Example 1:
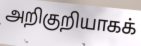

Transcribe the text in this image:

அறிகுறியாகக்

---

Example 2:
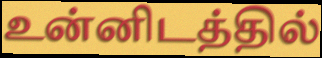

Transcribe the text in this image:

உன்னிடத்தில்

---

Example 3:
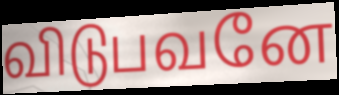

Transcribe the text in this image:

விடுபவனே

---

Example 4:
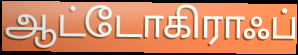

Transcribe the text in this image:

ஆட்டோகிராஃப்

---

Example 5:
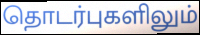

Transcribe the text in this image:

தொடர்புகளிலும்